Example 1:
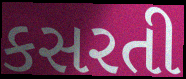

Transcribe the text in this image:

કસરતી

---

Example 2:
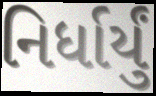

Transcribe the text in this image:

નિર્ધાર્યું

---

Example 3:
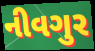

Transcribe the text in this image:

નીવગુર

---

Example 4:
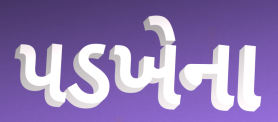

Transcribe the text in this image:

પડખેના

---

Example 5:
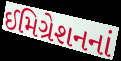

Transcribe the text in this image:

ઈમિગ્રેશનનાં